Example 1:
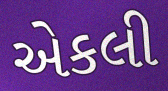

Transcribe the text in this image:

એકલી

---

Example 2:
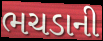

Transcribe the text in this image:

ભચડાની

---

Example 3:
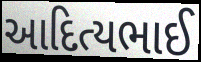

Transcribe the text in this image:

આદિત્યભાઈ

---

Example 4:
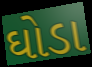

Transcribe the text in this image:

ઘોડા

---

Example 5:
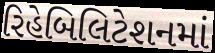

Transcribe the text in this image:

રિહેબિલિટેશનમાં